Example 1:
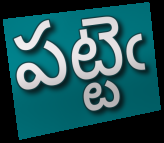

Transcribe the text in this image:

పట్టెఁ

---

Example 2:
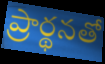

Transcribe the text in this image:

ప్రార్థనతో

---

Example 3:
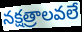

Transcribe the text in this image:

నక్షత్రాలవలే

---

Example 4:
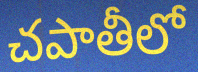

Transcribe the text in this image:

చపాతీలో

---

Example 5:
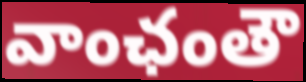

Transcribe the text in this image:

వాంఛంతౌ